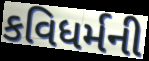
કવિધર્મની